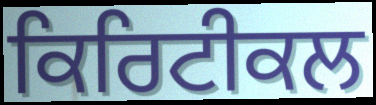
ਕਿਰਿਟੀਕਲ